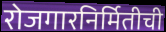
रोजगारनिर्मितीची